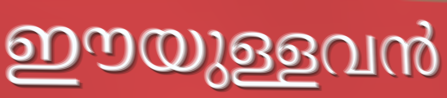
ഈയുള്ളവൻ